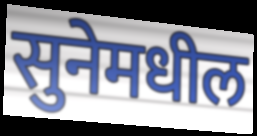
सुनेमधील